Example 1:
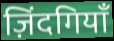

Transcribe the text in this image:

ज़िंदगियाँ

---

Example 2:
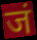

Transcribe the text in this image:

जं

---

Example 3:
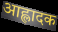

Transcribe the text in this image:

आह्लादक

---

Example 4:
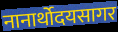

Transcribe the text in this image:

नानार्थोदयसागर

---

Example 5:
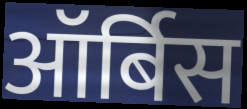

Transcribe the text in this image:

ऑर्बिस